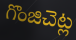
గొంజిచెట్ల